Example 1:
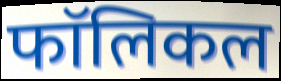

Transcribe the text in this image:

फॉलिकल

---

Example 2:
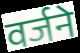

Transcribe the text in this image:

वर्जने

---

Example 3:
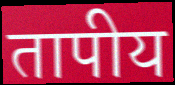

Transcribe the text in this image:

तापीय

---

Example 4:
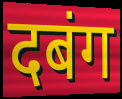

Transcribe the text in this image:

दबंग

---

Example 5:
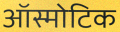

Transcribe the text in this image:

ऑस्मोटिक